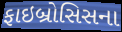
ફાઇબ્રોસિસના